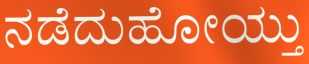
ನಡೆದುಹೋಯ್ತು